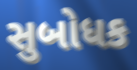
સુબોધક